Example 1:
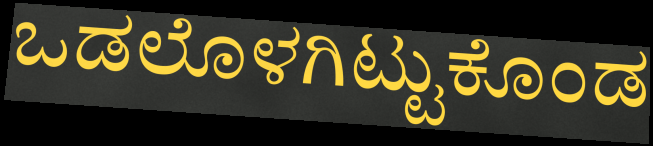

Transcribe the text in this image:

ಒಡಲೊಳಗಿಟ್ಟುಕೊಂಡ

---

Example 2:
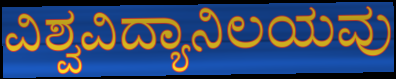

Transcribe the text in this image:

ವಿಶ್ವವಿದ್ಯಾನಿಲಯವು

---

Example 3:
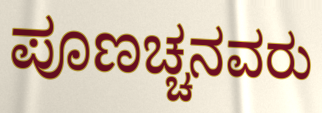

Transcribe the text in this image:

ಪೂಣಚ್ಚನವರು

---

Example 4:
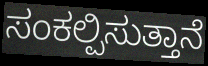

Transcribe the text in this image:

ಸಂಕಲ್ಪಿಸುತ್ತಾನೆ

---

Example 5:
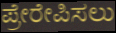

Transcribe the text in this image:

ಪ್ರೇರೇಪಿಸಲು